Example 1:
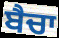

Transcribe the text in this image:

ਬੈਚਾ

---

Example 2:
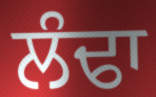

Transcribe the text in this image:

ਲੰਢਾ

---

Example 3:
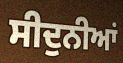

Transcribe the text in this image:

ਸੀਦੁਨੀਆਂ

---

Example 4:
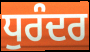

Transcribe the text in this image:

ਧੁਰੰਦਰ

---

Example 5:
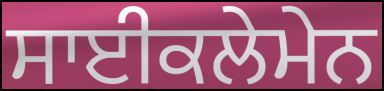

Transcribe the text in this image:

ਸਾਈਕਲੇਮੇਨ